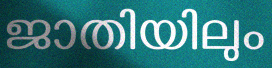
ജാതിയിലും